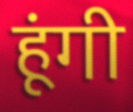
हूंगी